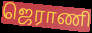
ஜெராணி